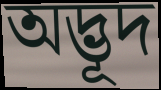
অদ্ভূদ